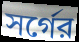
সর্গের